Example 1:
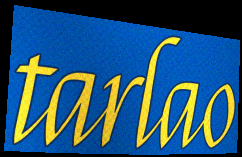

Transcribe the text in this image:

tarlao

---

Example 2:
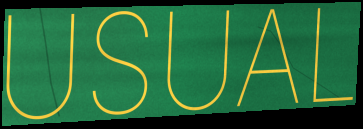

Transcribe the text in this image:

USUAL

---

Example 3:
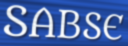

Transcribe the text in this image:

SABSE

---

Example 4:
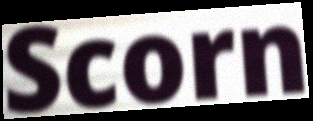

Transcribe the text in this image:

Scorn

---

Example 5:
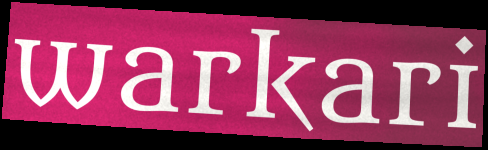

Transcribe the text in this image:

warkari